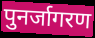
पुनर्जागरण